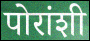
पोरांशी